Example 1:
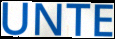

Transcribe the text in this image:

UNTE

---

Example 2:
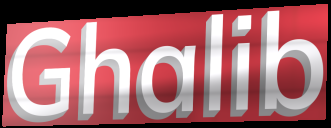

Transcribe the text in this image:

Ghalib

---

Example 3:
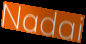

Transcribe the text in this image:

Nadai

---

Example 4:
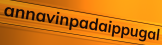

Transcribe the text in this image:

annavinpadaippugal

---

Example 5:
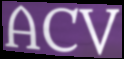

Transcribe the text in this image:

ACV